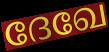
ദേഖേ